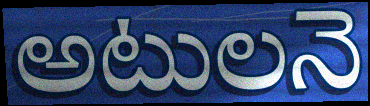
అటులనె